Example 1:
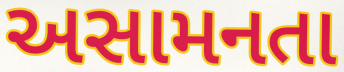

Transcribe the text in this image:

અસામનતા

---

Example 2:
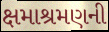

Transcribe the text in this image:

ક્ષમાશ્રમણની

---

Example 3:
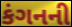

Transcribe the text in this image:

કંગનની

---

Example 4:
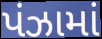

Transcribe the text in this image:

પંઝામાં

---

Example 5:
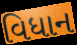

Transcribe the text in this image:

વિધાન